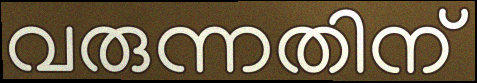
വരുന്നതിന്